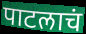
पाटलाचं